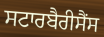
ਸਟਾਰਬੈਰੀਸੈਂਸ